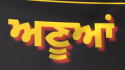
ਅਣੂਆਂ